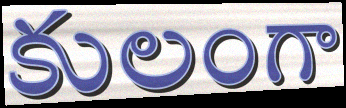
కులంగా